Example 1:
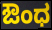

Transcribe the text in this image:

ಔಂಧ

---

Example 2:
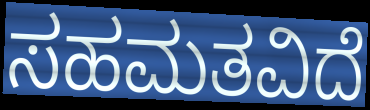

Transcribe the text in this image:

ಸಹಮತವಿದೆ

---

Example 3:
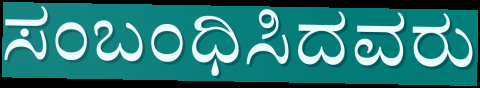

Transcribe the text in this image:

ಸಂಬಂಧಿಸಿದವರು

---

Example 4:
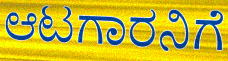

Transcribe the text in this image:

ಆಟಗಾರನಿಗೆ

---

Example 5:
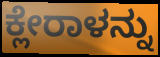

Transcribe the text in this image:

ಕ್ಲೇರಾಳನ್ನು